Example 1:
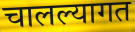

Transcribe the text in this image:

चालल्यागत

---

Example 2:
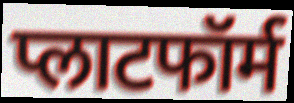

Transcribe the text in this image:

प्लाटफॉर्म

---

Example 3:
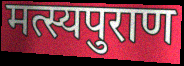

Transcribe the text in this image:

मत्स्यपुराण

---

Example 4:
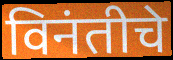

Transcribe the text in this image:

विनंतीचे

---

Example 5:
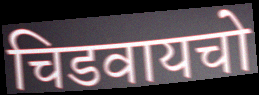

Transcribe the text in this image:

चिडवायचो